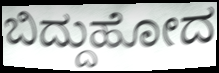
ಬಿದ್ದುಹೋದ